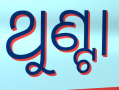
ଥୁଣ୍ଟା